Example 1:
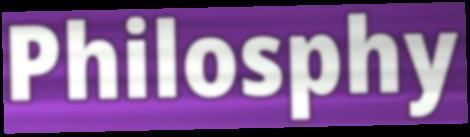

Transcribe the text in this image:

Philosphy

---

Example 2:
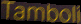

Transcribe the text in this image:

Tamboli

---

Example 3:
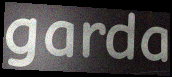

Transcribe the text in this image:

garda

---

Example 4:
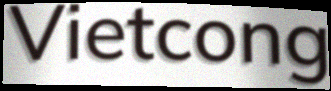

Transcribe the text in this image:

Vietcong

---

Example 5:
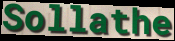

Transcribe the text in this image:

Sollathe